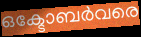
ഒക്ടോബർവരെ